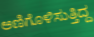
ಅಣಿಗೊಳಿಸುತ್ತಿದ್ದ